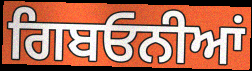
ਗਿਬਓਨੀਆਂ